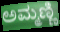
ಅಮ್ಮಣ್ಣಿ